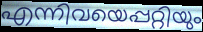
എന്നിവയെപ്പറ്റിയും